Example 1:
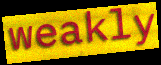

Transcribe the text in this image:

weakly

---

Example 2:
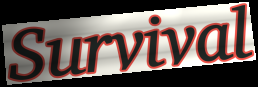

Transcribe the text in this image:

Survival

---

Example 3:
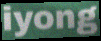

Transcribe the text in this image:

iyong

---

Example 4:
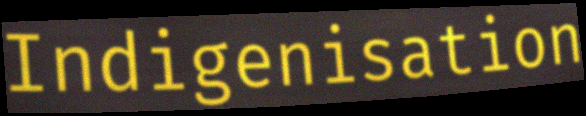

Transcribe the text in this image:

Indigenisation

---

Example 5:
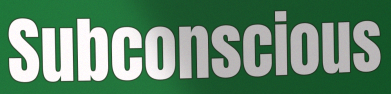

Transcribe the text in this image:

Subconscious